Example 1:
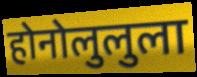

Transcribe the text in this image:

होनोलुलुला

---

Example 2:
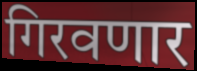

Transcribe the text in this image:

गिरवणार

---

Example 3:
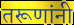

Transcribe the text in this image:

तरूणांनी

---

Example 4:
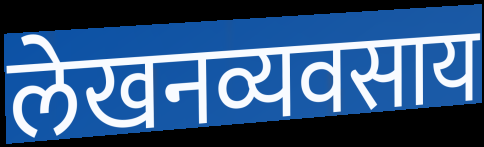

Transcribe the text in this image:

लेखनव्यवसाय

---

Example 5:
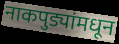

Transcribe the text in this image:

नाकपुड्यांमधून